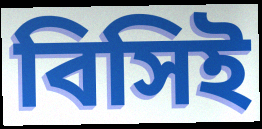
বিসিই